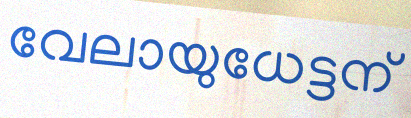
വേലായുധേട്ടന്